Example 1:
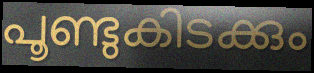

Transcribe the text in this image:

പൂണ്ടുകിടക്കും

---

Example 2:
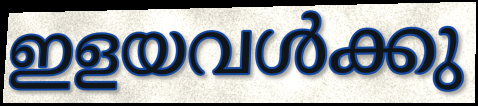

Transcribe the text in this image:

ഇളയവൾക്കു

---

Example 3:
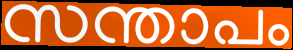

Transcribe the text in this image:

സന്താപം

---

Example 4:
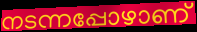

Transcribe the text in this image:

നടന്നപ്പോഴാണ്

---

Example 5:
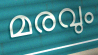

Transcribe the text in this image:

മരവും